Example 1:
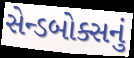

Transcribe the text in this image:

સેન્ડબોક્સનું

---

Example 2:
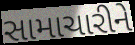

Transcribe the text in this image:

સામાચારીને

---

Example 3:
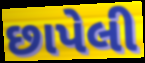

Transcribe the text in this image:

છાપેલી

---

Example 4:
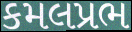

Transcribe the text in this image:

કમલપ્રભ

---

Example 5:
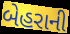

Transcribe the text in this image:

બેહરાની